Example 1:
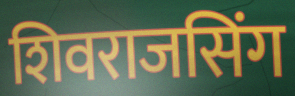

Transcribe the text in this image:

शिवराजसिंग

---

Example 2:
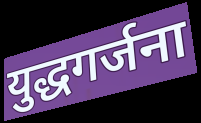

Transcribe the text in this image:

युद्धगर्जना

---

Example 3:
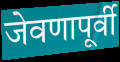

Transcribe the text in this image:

जेवणापूर्वी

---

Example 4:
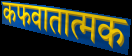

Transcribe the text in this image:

कफवातात्मक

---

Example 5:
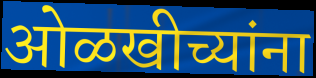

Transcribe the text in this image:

ओळखीच्यांना